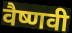
वैष्णवी